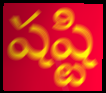
షష్టి